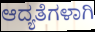
ಆದ್ಯತೆಗಳಾಗಿ